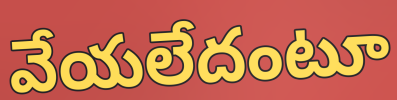
వేయలేదంటూ